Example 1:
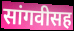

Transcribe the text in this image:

सांगवीसह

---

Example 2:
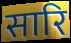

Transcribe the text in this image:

सारि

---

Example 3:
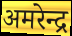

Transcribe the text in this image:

अमरेन्द्र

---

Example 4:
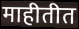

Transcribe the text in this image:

माहीतीत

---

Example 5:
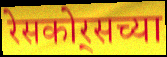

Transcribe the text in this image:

रेसकोर्सच्या